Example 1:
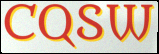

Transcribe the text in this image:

CQSW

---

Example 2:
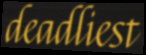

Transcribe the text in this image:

deadliest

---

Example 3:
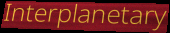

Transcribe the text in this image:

Interplanetary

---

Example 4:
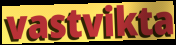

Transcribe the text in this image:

vastvikta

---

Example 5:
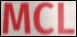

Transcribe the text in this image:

MCL